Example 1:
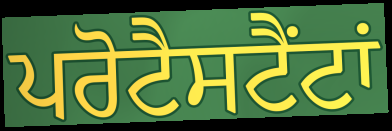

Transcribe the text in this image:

ਪਰੋਟੈਸਟੈਂਟਾਂ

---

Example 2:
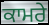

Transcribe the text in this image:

ਕਾਮਰੇ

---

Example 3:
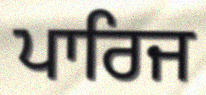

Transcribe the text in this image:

ਪਾਰਿਜ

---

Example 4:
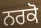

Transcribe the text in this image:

ਨਰਕੋ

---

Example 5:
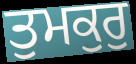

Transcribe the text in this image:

ਤੁਮਕੁਰੁ